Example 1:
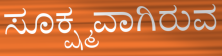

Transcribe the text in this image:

ಸೂಕ್ಷ್ಮವಾಗಿರುವ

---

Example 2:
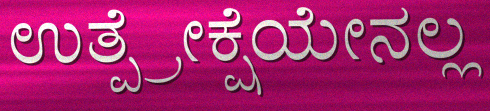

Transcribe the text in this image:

ಉತ್ಪ್ರೇಕ್ಷೆಯೇನಲ್ಲ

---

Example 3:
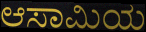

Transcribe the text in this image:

ಆಸಾಮಿಯ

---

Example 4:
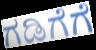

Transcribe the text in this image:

ಗಡಿಗೆಗೆ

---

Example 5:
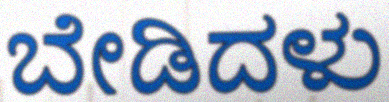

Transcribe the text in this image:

ಬೇಡಿದಳು